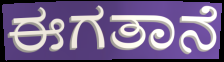
ಈಗತಾನೆ